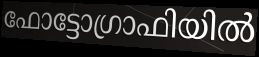
ഫോട്ടോഗ്രാഫിയിൽ